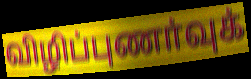
விழிப்புணர்வுக்